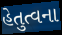
હેતુત્વના